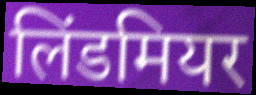
लिंडमियर